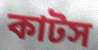
কাটস